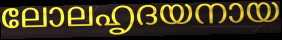
ലോലഹൃദയനായ